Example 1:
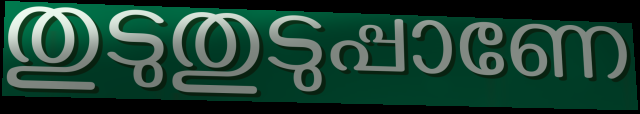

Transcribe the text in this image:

തുടുതുടുപ്പാണേ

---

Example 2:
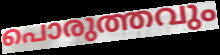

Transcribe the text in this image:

പൊരുത്തവും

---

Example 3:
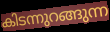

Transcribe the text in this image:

കിടന്നുറങ്ങുന്ന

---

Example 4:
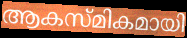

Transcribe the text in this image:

ആകസ്മികമായി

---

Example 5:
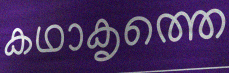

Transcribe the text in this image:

കഥാകൃത്തെ